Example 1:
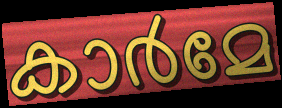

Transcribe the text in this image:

കാർമേ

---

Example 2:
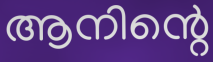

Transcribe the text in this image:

ആനിന്റെ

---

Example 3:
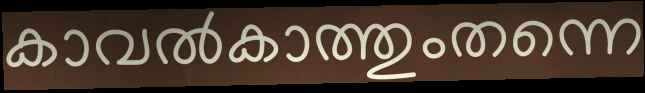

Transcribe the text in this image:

കാവൽകാത്തുംതന്നെ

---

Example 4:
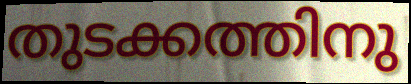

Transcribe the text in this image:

തുടക്കത്തിനു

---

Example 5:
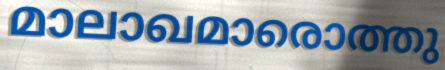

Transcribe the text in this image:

മാലാഖമാരൊത്തു